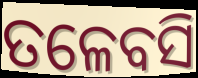
ତଳେବସି